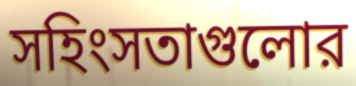
সহিংসতাগুলোর